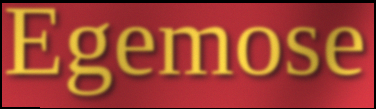
Egemose